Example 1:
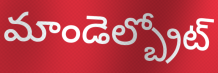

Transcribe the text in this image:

మాండెల్బ్రోట్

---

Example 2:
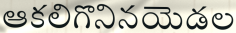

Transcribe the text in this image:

ఆకలిగొనినయెడల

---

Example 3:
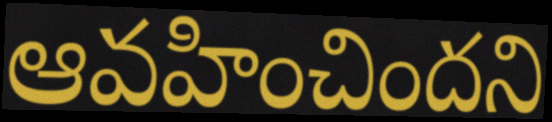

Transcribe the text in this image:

ఆవహించిందని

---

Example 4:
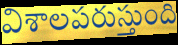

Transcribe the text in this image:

విశాలపరుస్తుంది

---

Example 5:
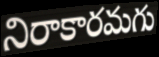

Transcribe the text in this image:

నిరాకారమగు